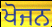
ਖੋਜਨ